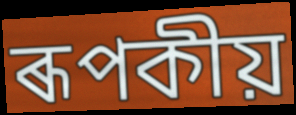
ৰূপকীয়